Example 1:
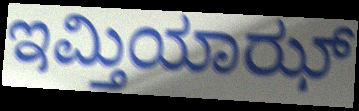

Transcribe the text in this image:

ಇಮ್ತಿಯಾಝ್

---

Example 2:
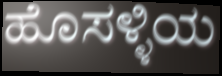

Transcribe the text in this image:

ಹೊಸಳ್ಳಿಯ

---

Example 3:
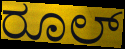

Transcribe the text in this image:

ರೂಲ್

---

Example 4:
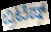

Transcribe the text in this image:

ಬ್ರಿಟಿಷ್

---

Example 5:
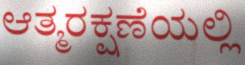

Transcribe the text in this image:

ಆತ್ಮರಕ್ಷಣೆಯಲ್ಲಿ